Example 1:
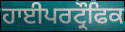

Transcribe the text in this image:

ਹਾਈਪਰਟ੍ਰੌਫਿਕ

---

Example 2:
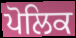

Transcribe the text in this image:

ਪੋਲਿਕ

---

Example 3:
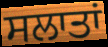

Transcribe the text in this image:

ਸਲਾਤਾਂ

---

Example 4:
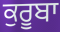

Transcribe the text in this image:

ਕੁਰੂਬਾ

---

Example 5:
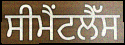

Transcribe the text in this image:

ਸੀਮੈਂਟਲੈੱਸ